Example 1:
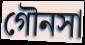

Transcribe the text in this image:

গৌনসা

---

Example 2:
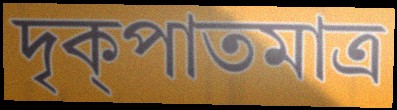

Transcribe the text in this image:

দৃক্পাতমাত্র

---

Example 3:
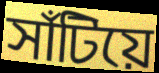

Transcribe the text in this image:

সাঁটিয়ে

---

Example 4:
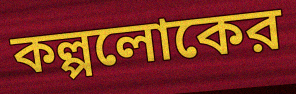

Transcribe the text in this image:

কল্পলোকের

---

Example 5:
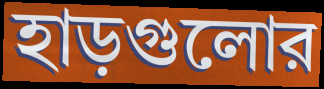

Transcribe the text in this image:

হাড়গুলোর